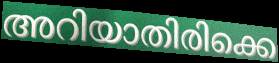
അറിയാതിരിക്കെ